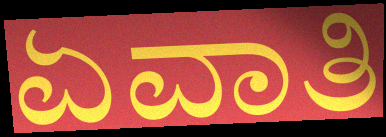
ಏವಾತಿ